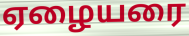
ஏழையரை